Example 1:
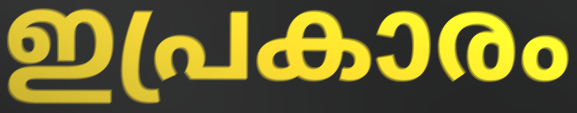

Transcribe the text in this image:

ഇപ്രകാരം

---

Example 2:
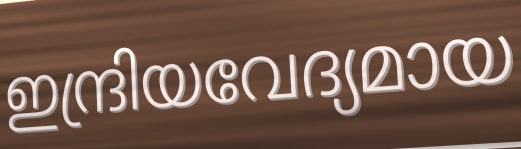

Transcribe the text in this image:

ഇന്ദ്രിയവേദ്യമായ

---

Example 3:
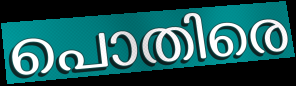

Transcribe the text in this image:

പൊതിരെ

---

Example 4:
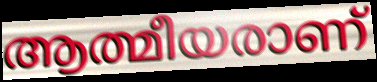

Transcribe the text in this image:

ആത്മീയരാണ്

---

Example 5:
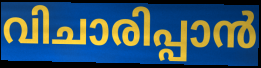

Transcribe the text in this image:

വിചാരിപ്പാൻ